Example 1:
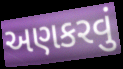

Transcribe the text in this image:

અણકરવું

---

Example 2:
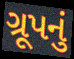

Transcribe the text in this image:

ગ્રૂપનું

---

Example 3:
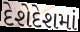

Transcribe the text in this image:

દેશેદેશમાં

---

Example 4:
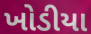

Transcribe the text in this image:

ખોડીયા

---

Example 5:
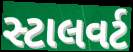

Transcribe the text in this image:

સ્ટાલવર્ટ